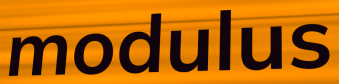
modulus